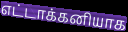
எட்டாக்கனியாக